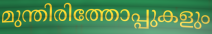
മുന്തിരിത്തോപ്പുകളും